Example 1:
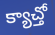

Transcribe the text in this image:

క్యాచ్తో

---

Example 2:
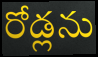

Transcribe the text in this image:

రోడ్లను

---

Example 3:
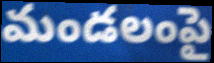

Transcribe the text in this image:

మండలంపై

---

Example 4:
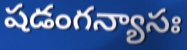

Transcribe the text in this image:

షడంగన్యాసః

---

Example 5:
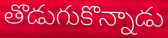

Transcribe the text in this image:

తొడుగుకొన్నాడు